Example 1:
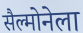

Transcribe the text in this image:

सैल्मोनेला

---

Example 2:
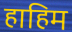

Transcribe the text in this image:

हाहिम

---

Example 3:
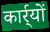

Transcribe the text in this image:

कार्र्यों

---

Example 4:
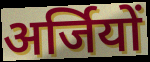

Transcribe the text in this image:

अर्जियों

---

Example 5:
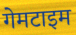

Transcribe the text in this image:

गेमटाइम